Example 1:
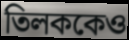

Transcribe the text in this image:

তিলককেও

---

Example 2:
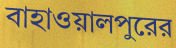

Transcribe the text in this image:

বাহাওয়ালপুরের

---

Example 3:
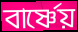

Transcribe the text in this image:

বার্ষ্ণেয়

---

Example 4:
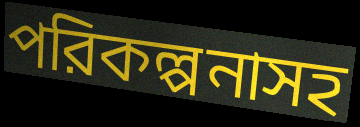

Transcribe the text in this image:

পরিকল্পনাসহ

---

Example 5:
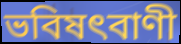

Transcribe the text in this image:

ভবিষৎবাণী